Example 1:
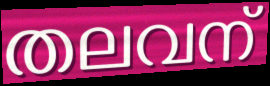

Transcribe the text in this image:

തലവന്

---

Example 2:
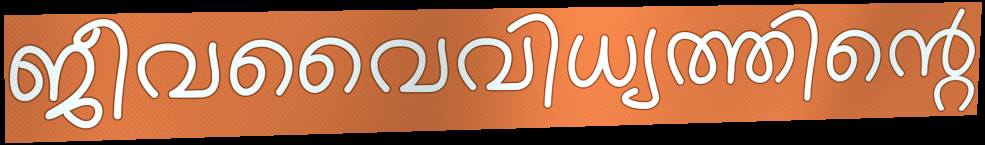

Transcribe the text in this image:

ജീവവൈവിധ്യത്തിന്റെ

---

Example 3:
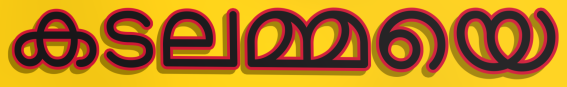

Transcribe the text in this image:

കടലമ്മയെ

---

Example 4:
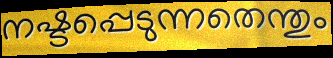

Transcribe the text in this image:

നഷ്ടപ്പെടുന്നതെന്തും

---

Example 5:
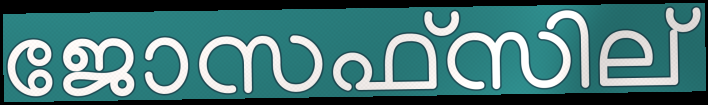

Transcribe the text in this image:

ജോസഫ്സില്